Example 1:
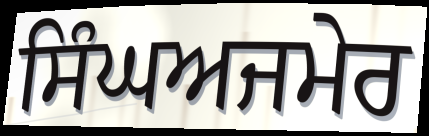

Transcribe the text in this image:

ਸਿੰਘਅਜਮੇਰ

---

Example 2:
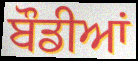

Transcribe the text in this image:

ਬੌਡੀਆਂ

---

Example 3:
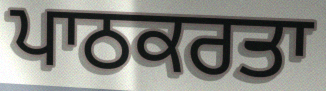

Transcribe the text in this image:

ਪਾਠਕਰਤਾ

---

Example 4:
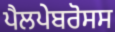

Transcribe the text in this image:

ਪੈਲਪੇਬਰੋਸਸ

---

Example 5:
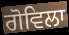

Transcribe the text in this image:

ਗੋਵਿਲਾ